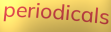
periodicals